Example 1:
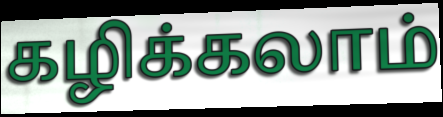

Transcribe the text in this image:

கழிக்கலாம்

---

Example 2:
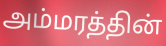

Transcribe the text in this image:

அம்மரத்தின்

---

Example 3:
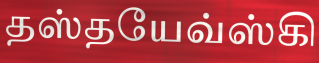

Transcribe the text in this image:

தஸ்தயேவ்ஸ்கி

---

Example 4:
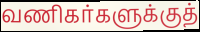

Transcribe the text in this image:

வணிகர்களுக்குத்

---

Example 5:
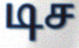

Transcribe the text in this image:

டிச